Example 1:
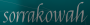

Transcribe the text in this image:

sorrakowah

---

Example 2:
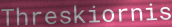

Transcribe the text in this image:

Threskiornis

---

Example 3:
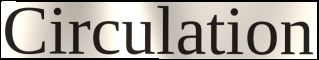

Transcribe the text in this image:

Circulation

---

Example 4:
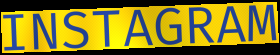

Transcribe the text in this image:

INSTAGRAM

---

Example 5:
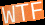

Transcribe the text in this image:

WTF